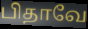
பிதாவே